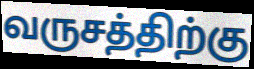
வருசத்திற்கு